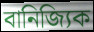
বানিজ্যিক